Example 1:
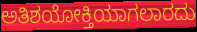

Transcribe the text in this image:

ಅತಿಶಯೋಕ್ತಿಯಾಗಲಾರದು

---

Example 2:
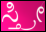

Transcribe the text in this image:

ಸ್ತ್ರೀ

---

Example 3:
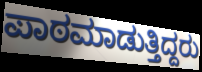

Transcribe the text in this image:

ಪಾಠಮಾಡುತ್ತಿದ್ದರು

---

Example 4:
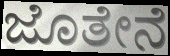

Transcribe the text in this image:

ಜೊತೇನೆ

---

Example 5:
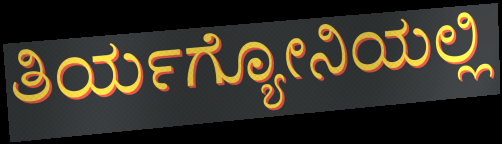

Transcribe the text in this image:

ತಿರ್ಯಗ್ಯೋನಿಯಲ್ಲಿ